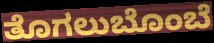
ತೊಗಲುಬೊಂಬೆ